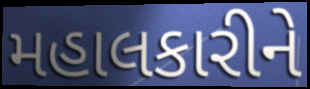
મહાલકારીને